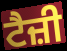
ਟੈਜ਼ੀ